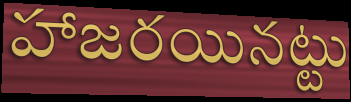
హాజరయినట్టు